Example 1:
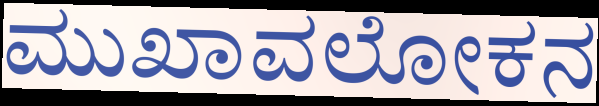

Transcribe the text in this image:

ಮುಖಾವಲೋಕನ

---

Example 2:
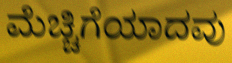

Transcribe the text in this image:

ಮೆಚ್ಚಿಗೆಯಾದವು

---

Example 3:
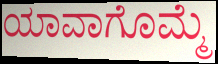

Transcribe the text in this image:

ಯಾವಾಗೊಮ್ಮೆ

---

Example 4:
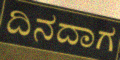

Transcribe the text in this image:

ದಿನದಾಗ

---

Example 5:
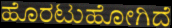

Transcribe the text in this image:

ಹೊರಟುಹೋಗಿದೆ